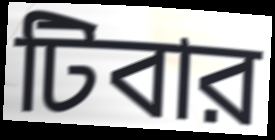
টিবার